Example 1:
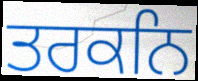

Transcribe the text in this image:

ਤਰਕਨਿ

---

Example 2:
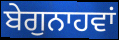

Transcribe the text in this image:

ਬੇਗੁਨਾਹਵਾਂ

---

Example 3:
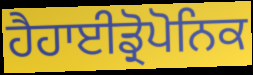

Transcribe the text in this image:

ਹੈਹਾਈਡ੍ਰੋਪੋਨਿਕ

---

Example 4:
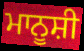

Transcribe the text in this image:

ਮਾਨੂਸ਼ੀ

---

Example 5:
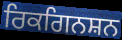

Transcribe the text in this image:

ਰਿਕਗਿਨਸ਼ਨ